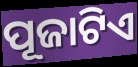
ପୂଜାଟିଏ